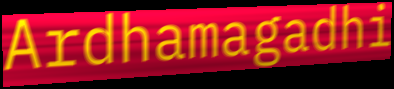
Ardhamagadhi